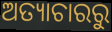
ଅତ୍ୟାଚାରରୁ